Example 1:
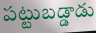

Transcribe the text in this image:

పట్టుబడ్డాడు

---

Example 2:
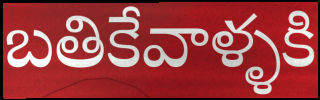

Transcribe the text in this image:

బతికేవాళ్ళకి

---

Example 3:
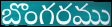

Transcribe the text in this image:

బొంగరము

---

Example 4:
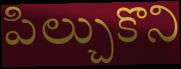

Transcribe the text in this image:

పిల్చుకొని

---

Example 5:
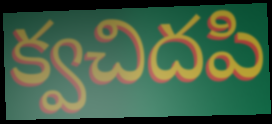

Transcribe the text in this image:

క్వచిదపి